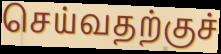
செய்வதற்குச்